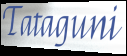
Tataguni